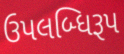
ઉપલબ્ધિરૂપ